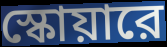
স্কোয়ারে